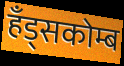
हँड्सकोम्ब